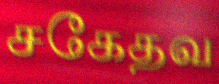
சகேதவ